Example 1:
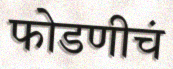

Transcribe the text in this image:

फोडणीचं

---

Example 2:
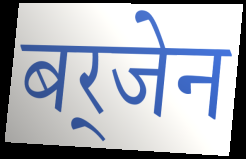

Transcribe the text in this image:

बर्जेन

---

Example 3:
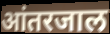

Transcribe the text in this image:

आंतरजाल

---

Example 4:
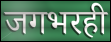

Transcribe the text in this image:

जगभरही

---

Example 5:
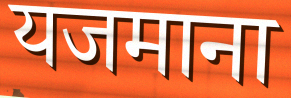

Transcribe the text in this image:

यजमाना